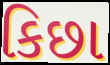
કિછા